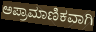
ಅಪ್ರಾಮಾಣಿಕವಾಗಿ